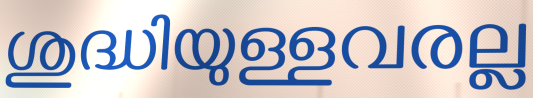
ശുദ്ധിയുള്ളവരല്ല